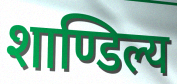
शाण्डिल्य